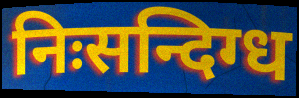
निःसन्दिग्ध